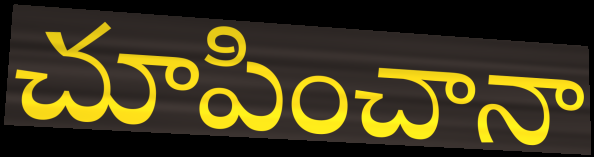
చూపించానా